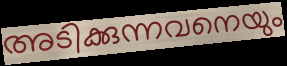
അടിക്കുന്നവനെയും